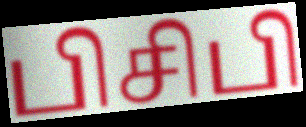
பிசிபி